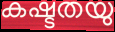
കഷ്ടതയു